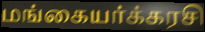
மங்கையர்க்கரசி